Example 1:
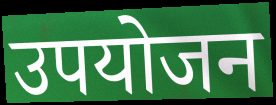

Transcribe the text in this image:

उपयोजन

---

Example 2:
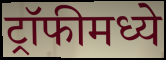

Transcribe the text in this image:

ट्रॉफीमध्ये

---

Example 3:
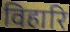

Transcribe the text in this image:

विहारि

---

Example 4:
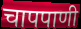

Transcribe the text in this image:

चापपाणी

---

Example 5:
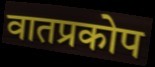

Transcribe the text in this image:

वातप्रकोप